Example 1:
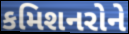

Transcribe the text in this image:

કમિશનરોને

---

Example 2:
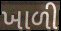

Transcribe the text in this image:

ખાળી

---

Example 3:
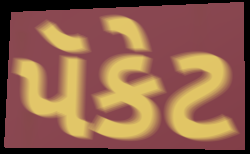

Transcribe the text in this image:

પૅકેટ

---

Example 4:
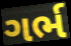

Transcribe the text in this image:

ગર્ભ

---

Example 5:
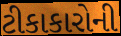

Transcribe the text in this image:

ટીકાકારોની